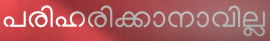
പരിഹരിക്കാനാവില്ല